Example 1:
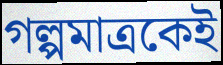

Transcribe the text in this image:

গল্পমাত্রকেই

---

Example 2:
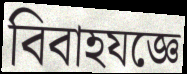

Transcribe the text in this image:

বিবাহযজ্ঞে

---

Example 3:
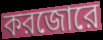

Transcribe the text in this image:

করজোরে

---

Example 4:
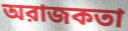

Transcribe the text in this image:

অরাজকতা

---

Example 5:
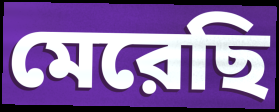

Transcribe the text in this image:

মেরেছি